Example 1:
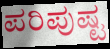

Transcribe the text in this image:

ಪರಿಪುಷ್ಟ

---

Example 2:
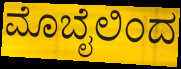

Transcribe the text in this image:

ಮೊಬೈಲಿಂದ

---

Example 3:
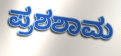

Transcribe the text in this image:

ಪ್ರಶಶಾಮ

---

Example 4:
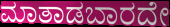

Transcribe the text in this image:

ಮಾತಾಡಬಾರದೇ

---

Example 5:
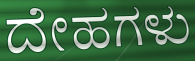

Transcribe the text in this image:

ದೇಹಗಳು